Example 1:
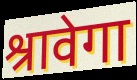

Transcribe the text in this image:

श्रावेगा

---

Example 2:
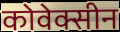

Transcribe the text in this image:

कोवेक्सीन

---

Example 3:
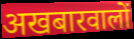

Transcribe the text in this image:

अखबारवालों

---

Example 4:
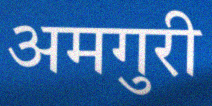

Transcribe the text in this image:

अमगुरी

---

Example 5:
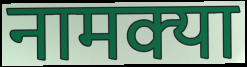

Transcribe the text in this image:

नामक्या